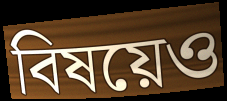
বিষয়েও